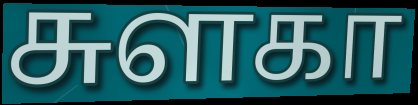
சுளகா